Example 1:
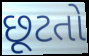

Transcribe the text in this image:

છૂટતો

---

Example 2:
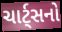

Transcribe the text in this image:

ચાર્ટ્સનો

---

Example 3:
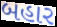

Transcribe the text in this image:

બહાર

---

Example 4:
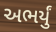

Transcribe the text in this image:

અભર્યું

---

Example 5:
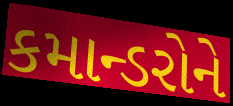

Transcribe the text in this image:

કમાન્ડરોને